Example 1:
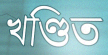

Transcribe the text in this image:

খণ্ডিত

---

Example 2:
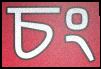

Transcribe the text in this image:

চং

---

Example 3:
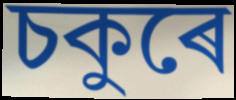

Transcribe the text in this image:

চকুৰে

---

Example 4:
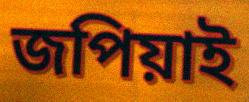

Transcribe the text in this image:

জপিয়াই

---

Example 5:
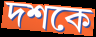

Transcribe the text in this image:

দশকে